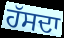
ਹੱਸਦਾ